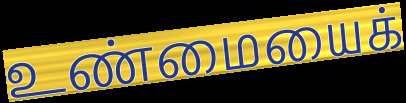
உண்மையைக்